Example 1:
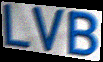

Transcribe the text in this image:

LVB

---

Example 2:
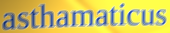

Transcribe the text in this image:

asthamaticus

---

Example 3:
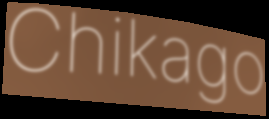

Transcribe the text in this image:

Chikago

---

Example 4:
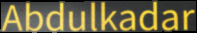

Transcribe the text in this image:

Abdulkadar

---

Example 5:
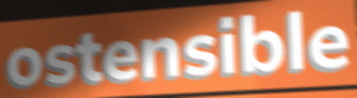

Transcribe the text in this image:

ostensible